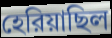
হেরিয়াছিল